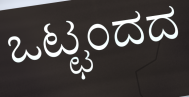
ಒಟ್ಟಂದದ